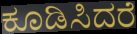
ಕೂಡಿಸಿದರೆ